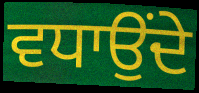
ਵਧਾਉਂਦੇ